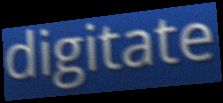
digitate